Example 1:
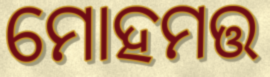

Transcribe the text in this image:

ମୋହମତ୍ତ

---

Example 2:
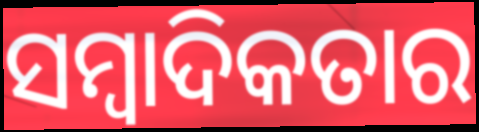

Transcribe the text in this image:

ସମ୍ୱାଦିକତାର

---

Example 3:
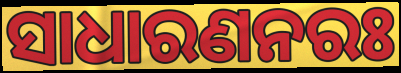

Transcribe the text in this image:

ସାଧାରଣନରଃ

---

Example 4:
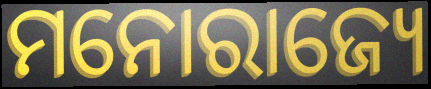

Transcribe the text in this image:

ମନୋରାଜ୍ୟେ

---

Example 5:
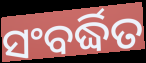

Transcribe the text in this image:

ସଂବର୍ଦ୍ଧିତ